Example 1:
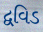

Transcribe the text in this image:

દ્વવિડ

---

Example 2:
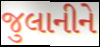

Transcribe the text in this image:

જુલાનીને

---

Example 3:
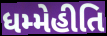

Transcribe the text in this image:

ધમ્મેહીતિ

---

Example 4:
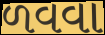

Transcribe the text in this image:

ળવવા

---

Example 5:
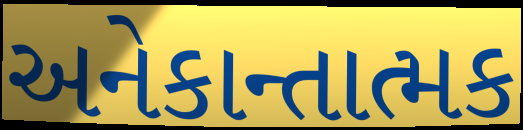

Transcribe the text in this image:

અનેકાન્તાત્મક